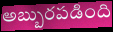
అబ్బురపడింది